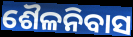
ଶୈଳନିବାସ